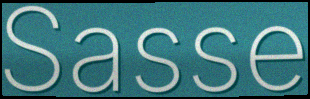
Sasse